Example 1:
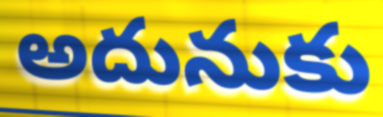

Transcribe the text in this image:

అదునుకు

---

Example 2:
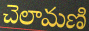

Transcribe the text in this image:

చెలామణి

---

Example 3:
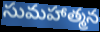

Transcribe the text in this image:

సుమహాత్మన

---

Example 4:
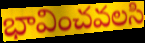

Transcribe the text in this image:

భావించవలసి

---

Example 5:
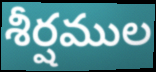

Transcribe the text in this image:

శీర్షముల